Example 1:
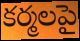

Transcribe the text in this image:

కర్మలపై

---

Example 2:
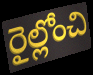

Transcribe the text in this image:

రైల్లోంచి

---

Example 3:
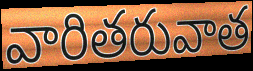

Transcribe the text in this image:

వారితరువాత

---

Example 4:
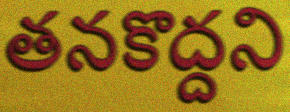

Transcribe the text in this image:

తనకొద్దని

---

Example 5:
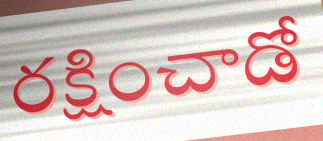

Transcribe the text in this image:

రక్షించాడో